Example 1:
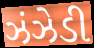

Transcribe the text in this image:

ઝંઝેડી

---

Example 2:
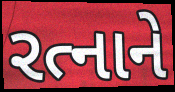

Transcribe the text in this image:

રત્નાને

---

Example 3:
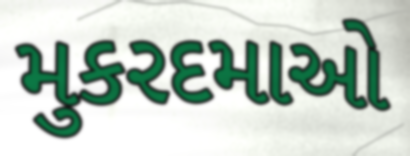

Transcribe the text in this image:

મુકરદમાઓ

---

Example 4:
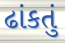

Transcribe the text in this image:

ઢાંકતું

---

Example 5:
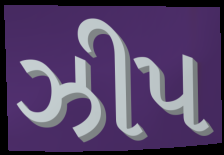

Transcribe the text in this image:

ઝીપ